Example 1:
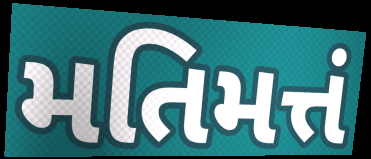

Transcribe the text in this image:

મતિમત્તં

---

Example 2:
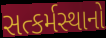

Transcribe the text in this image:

સત્કર્મસ્થાનો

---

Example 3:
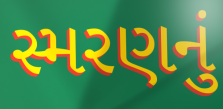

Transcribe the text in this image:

સ્મરણનું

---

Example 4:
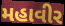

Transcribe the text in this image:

મહાવીર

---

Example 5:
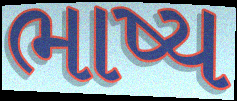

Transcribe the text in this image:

ભાષ્ય